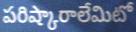
పరిష్కారాలేమిటో